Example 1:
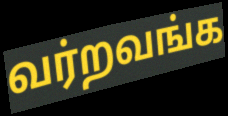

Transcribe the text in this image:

வர்றவங்க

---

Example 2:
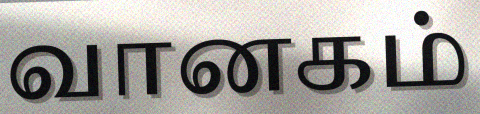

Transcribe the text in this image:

வானகம்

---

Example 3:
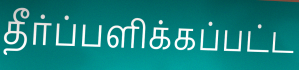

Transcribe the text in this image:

தீர்ப்பளிக்கப்பட்ட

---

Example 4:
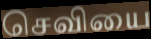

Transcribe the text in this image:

செவியை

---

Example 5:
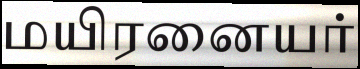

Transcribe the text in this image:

மயிரனையர்